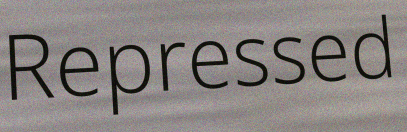
Repressed